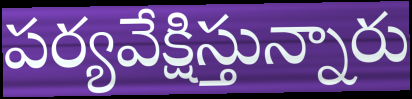
పర్యవేక్షిస్తున్నారు